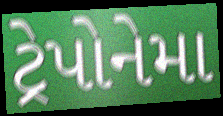
ટ્રેપોનેમા